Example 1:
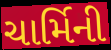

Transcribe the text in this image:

ચાર્મિની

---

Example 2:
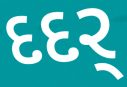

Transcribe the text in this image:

દદર્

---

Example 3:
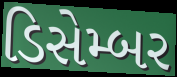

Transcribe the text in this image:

ડિસેમ્બર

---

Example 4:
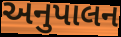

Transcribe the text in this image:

અનુપાલન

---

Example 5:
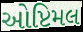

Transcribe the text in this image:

ઓપ્ટિમલ